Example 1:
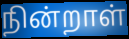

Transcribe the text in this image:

நின்றாள்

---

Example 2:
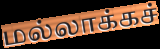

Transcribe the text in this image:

மல்லாக்கச்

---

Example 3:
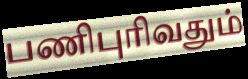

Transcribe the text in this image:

பணிபுரிவதும்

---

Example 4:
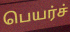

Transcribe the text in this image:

பெயர்ச்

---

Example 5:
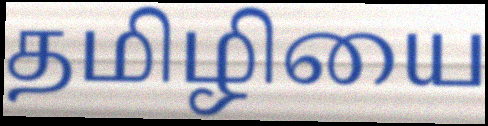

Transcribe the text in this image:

தமிழியை